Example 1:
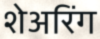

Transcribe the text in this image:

शेअरिंग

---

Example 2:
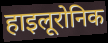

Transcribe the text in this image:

हाइलूरोनिक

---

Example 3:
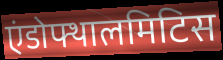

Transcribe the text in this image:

एंडोफ्थालमिटिस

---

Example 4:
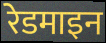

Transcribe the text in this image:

रेडमाइन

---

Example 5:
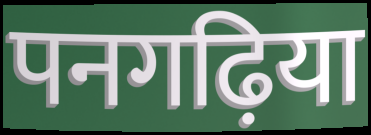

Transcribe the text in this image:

पनगढ़िया